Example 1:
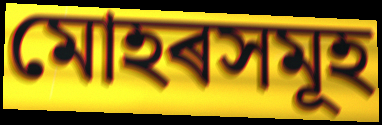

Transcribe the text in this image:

মোহৰসমূহ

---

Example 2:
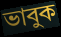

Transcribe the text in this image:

ভাবুক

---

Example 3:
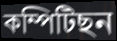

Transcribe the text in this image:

কম্পিটিছন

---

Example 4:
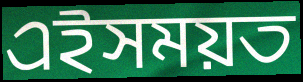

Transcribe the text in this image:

এইসময়ত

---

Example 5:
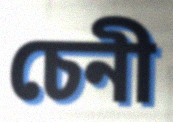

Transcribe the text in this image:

চেনী